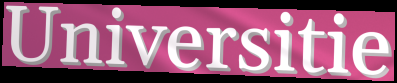
Universitie